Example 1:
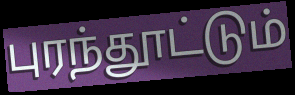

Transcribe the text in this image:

புரந்தூட்டும்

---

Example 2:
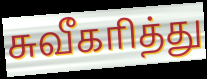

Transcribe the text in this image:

சுவீகரித்து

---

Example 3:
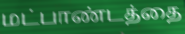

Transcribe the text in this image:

மட்பாண்டத்தை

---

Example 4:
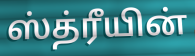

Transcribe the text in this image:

ஸ்த்ரீயின்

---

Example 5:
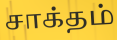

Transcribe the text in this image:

சாக்தம்